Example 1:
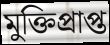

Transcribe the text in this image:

মুক্তিপ্রাপ্ত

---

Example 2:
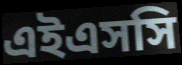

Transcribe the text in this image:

এইএসসি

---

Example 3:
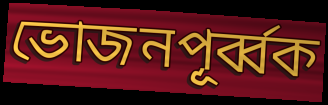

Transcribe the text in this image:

ভোজনপূর্ব্বক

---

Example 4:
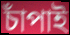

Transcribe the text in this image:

চাঁপাই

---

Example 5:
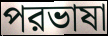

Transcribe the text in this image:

পরভাষা